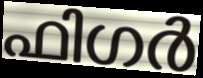
ഫിഗർ